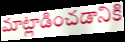
మాట్లాడించడానికి